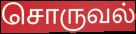
சொருவல்